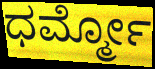
ಧರ್ಮ್ಮೋ